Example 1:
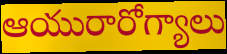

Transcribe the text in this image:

ఆయురారోగ్యాలు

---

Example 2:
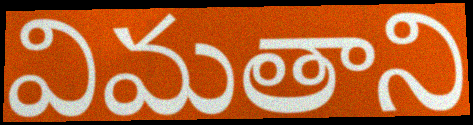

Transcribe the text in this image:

విమతాని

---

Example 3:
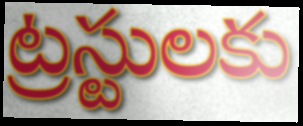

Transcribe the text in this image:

ట్రస్టులకు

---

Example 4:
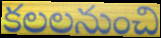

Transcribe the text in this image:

కలలనుంచి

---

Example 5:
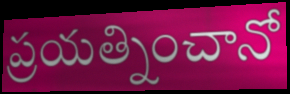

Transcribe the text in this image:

ప్రయత్నించానో